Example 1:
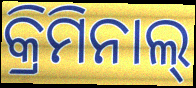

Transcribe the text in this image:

କ୍ରିମିନାଲ୍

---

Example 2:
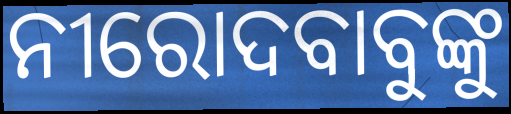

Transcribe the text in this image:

ନୀରୋଦବାବୁଙ୍କୁ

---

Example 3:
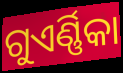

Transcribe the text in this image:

ଗୁଏର୍ଣ୍ଣିକା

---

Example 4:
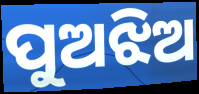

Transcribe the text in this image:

ପୁଅଝିଅ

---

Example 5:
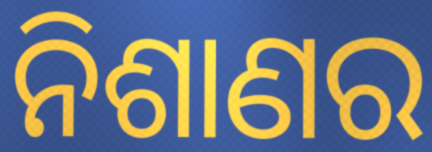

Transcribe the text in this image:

ନିଶାଣର